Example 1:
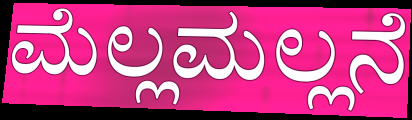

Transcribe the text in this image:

ಮೆಲ್ಲಮಲ್ಲನೆ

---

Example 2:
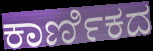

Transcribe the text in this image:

ಕಾರ್ಣಿಕದ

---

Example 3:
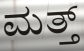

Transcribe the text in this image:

ಮತ್ತ್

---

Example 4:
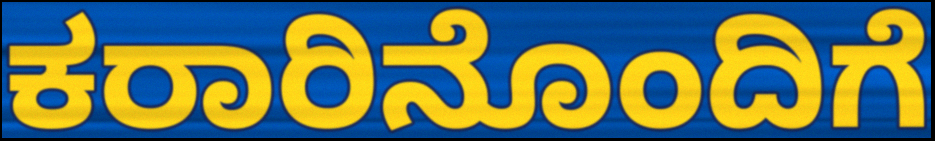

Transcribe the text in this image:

ಕರಾರಿನೊಂದಿಗೆ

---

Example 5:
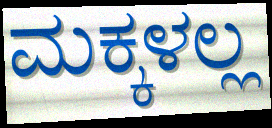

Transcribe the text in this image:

ಮಕ್ಕಳಲ್ಲ